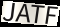
JATF